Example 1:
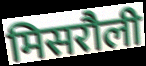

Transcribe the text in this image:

मिसरौली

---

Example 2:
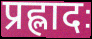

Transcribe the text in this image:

प्रह्लादः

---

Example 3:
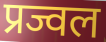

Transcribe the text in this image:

प्रज्वल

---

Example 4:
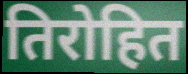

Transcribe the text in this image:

तिरोहित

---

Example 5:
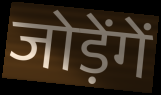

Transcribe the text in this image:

जोड़ेंगें